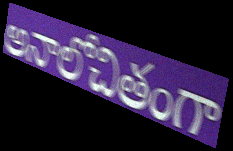
అనాలోచితంగా